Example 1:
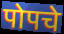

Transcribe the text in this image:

पोपचे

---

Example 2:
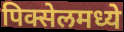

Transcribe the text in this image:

पिक्सेलमध्ये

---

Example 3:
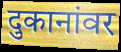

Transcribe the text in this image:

दुकानांवर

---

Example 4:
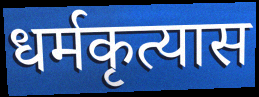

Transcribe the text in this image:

धर्मकृत्यास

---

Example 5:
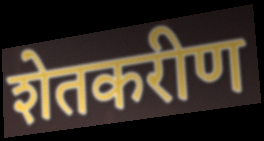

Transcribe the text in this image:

शेतकरीण